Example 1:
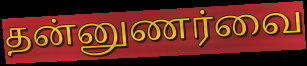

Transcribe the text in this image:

தன்னுணர்வை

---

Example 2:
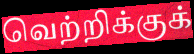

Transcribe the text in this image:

வெற்றிக்குக்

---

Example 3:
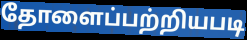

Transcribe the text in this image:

தோளைப்பற்றியபடி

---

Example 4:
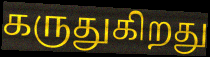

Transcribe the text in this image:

கருதுகிறது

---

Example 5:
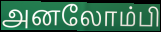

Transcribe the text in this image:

அனலோம்பி